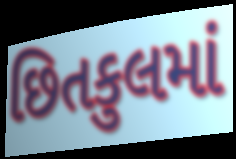
છિતકુલમાં